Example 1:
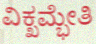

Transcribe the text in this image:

ವಿಕ್ಖಮ್ಭೇತಿ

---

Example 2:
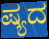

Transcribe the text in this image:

ಷ್ಯದ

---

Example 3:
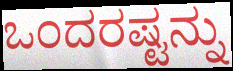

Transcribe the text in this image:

ಒಂದರಷ್ಟನ್ನು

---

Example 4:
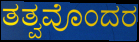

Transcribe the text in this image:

ತತ್ವವೊಂದರ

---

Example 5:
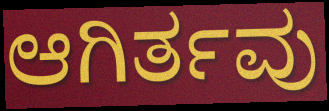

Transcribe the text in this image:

ಆಗಿರ್ತವು